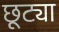
छूट्या